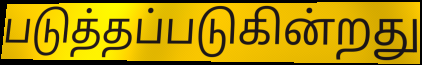
படுத்தப்படுகின்றது